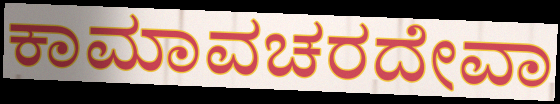
ಕಾಮಾವಚರದೇವಾ